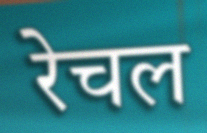
रेचल